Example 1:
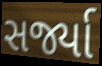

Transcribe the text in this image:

સર્જ્યા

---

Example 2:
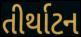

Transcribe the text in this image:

તીર્થાટન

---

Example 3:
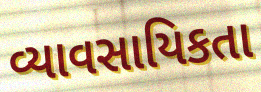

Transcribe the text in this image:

વ્યાવસાયિકતા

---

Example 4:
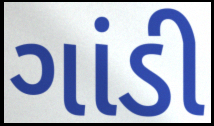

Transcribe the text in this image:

ગાંડી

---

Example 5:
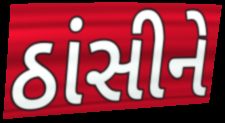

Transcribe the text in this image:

ઠાંસીને